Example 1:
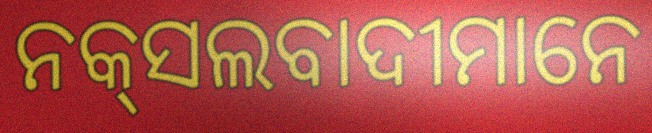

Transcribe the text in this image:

ନକ୍‌ସଲବାଦୀମାନେ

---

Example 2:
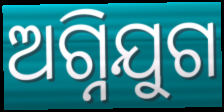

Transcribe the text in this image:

ଅଗ୍ନିଯୁଗ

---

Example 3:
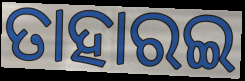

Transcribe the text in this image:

ତାହାରଇ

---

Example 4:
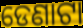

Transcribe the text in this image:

ଡେଣାଟା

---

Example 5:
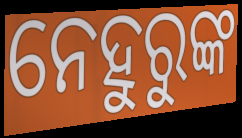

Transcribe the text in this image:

ନେହୁରୁଙ୍କ